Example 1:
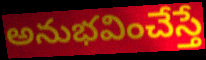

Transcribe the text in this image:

అనుభవించేస్తే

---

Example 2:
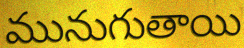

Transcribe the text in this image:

మునుగుతాయి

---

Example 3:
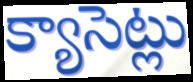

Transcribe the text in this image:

క్యాసెట్లు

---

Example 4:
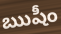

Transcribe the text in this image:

ఋషీం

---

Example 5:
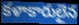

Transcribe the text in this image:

కళాకారులైన